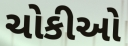
ચોકીઓ